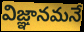
విజ్ఞానమనే